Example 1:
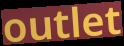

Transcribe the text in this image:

outlet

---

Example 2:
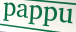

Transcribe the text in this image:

pappu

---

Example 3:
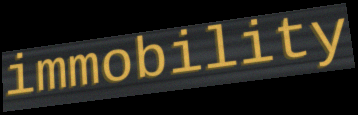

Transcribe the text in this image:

immobility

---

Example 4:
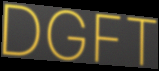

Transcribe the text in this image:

DGFT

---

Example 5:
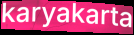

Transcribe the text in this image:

karyakarta